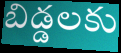
బిడ్డలకు